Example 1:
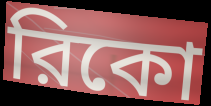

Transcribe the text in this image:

রিকো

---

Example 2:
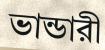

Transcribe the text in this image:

ভান্ডারী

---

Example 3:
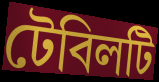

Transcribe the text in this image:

টেবিলটি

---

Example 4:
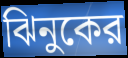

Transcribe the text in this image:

ঝিনুকের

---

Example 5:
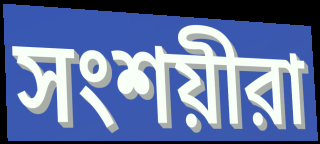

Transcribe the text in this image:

সংশয়ীরা